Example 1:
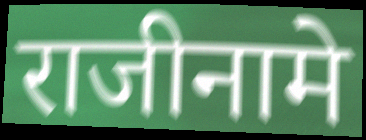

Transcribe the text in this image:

राजीनामे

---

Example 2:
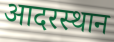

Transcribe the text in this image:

आदरस्थान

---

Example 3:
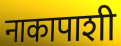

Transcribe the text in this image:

नाकापाशी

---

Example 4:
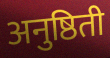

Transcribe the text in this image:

अनुष्ठिती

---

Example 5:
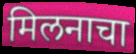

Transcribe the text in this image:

मिलनाचा